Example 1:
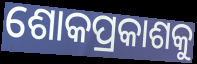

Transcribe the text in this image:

ଶୋକପ୍ରକାଶକୁ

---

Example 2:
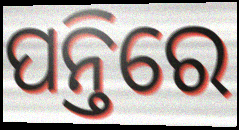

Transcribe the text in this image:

ପନ୍ତିରେ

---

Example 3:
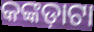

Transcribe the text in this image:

କଙ୍କଡ଼ାଟା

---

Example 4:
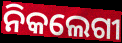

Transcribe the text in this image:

ନିକଲେଗୀ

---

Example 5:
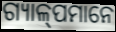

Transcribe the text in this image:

ଗ୍ୟାଳ୍‍ପମାନେ